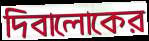
দিবালোকের